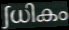
ഽധികം